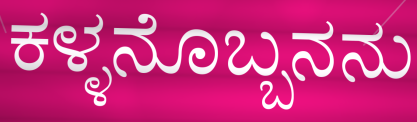
ಕಳ್ಳನೊಬ್ಬನನು